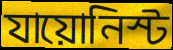
যায়োনিস্ট